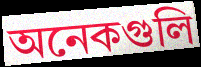
অনেকগুলি